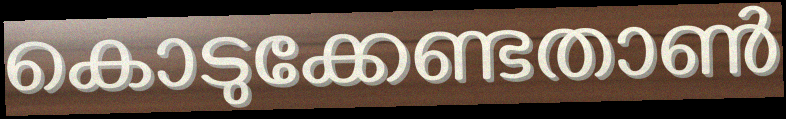
കൊടുക്കേണ്ടതാൺ